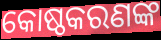
କୋଷ୍ଠକରଣଙ୍କ